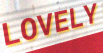
LOVELY